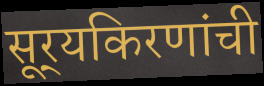
सूर्यकिरणांची